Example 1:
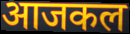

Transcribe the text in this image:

आजकल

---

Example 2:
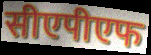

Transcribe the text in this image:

सीएपीएफ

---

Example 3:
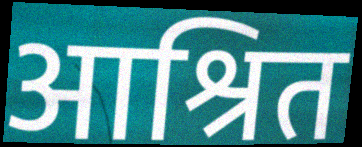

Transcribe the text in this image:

आश्रित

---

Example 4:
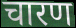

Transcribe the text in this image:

चारण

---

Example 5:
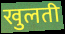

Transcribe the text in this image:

खुलती